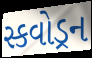
સ્કવોડ્રન